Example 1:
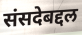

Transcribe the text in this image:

संसदेबद्दल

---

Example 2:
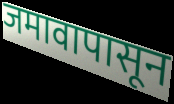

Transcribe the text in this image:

जमावापासून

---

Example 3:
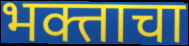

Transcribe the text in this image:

भक्ताचा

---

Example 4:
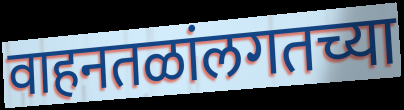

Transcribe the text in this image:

वाहनतळांलगतच्या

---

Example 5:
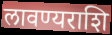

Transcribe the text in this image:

लावण्यराशि